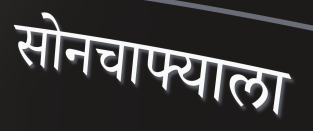
सोनचाफ्याला